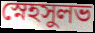
স্নেহসুলভ